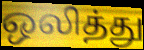
ஒலித்து